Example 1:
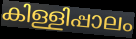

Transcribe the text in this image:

കിള്ളിപ്പാലം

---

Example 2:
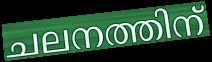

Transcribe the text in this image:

ചലനത്തിന്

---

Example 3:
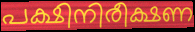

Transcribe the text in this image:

പക്ഷിനിരീക്ഷണ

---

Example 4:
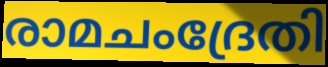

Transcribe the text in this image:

രാമചംദ്രേതി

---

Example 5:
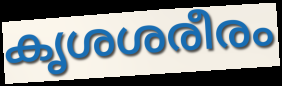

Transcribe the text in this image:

കൃശശരീരം